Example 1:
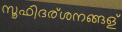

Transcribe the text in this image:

സൂഫിദര്ശനങ്ങള്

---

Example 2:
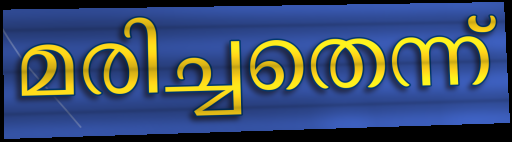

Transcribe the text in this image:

മരിച്ചതെന്ന്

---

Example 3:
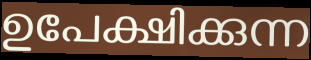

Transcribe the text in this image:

ഉപേക്ഷിക്കുന്ന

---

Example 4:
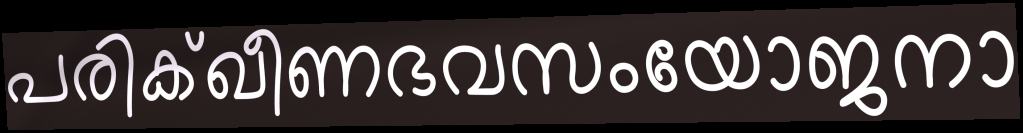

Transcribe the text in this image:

പരിക്ഖീണഭവസംയോജനാ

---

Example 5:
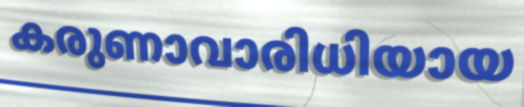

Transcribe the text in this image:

കരുണാവാരിധിയായ